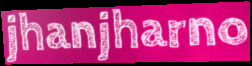
jhanjharno